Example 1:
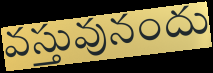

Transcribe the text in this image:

వస్తువునందు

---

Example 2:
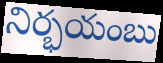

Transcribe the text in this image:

నిర్భయంబు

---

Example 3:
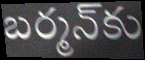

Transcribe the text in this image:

బర్మన్‌కు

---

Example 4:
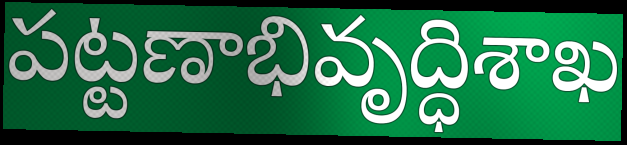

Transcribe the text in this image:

పట్టణాభివృద్ధిశాఖ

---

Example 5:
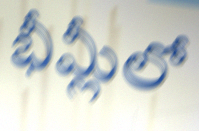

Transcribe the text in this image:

భీమ్లీలో